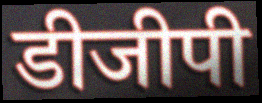
डीजीपी